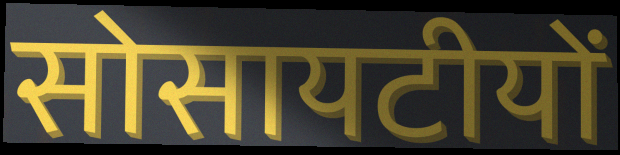
सोसायटीयों